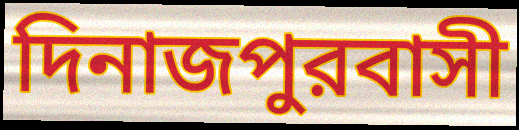
দিনাজপুরবাসী